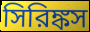
সিরিঙ্কস